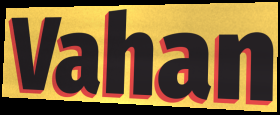
Vahan